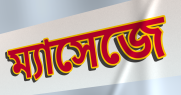
ম্যাসেজে